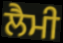
ਲੈਮੀ